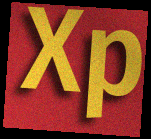
Xp